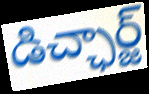
డిచ్ఛార్జ్